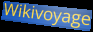
Wikivoyage